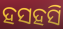
ହସହସି